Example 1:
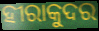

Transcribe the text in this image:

ହୀରାକୁଦର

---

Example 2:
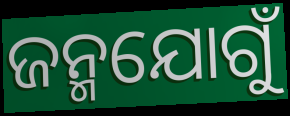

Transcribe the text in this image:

ଜନ୍ମଯୋଗୁଁ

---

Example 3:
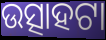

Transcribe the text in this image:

ଉତ୍ସାହଟା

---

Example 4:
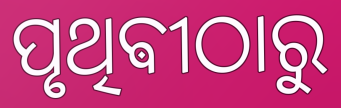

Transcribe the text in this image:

ପୃଥିଵୀଠାରୁ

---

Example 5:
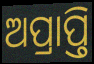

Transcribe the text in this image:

ଅପ୍ରାପ୍ତି